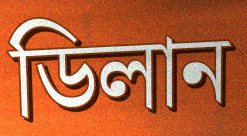
ডিলান